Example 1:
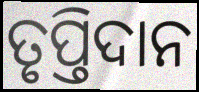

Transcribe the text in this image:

ତୃପ୍ତିଦାନ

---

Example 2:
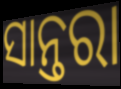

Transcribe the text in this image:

ସାନ୍ତରା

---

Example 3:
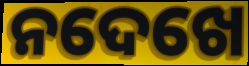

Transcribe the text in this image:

ନଦେଖେ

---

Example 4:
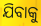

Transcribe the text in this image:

ଯିବାକୁ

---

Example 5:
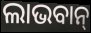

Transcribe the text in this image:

ଲାଭବାନ୍